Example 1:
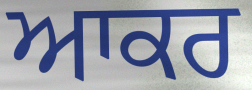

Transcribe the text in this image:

ਆਕਰ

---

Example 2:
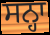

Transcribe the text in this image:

ਸਨ੍ਹਾ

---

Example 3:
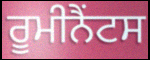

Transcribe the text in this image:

ਰੂਮੀਨੈਂਟਸ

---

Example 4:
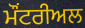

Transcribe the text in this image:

ਮੌਂਟਰੀਅਲ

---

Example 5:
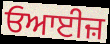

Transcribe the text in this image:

ਓਆਈਜ਼